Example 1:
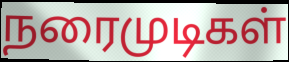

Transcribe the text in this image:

நரைமுடிகள்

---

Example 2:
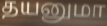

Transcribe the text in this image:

தயனுமா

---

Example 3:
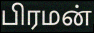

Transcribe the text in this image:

பிரமன்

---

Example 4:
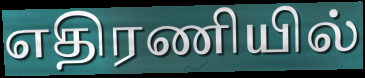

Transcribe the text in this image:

எதிரணியில்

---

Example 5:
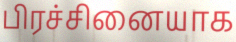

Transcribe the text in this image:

பிரச்சினையாக